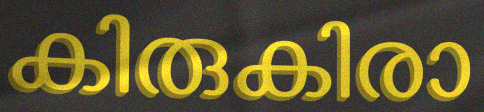
കിരുകിരാ